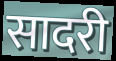
सादरी